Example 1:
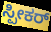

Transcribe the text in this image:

ಸ್ಪೀಕರ್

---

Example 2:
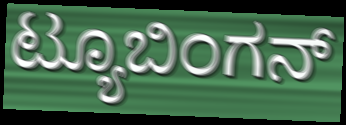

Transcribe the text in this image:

ಟ್ಯೂಬಿಂಗನ್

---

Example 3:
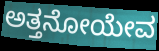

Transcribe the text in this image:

ಅತ್ತನೋಯೇವ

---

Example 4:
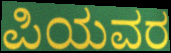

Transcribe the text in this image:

ಪಿಯವರ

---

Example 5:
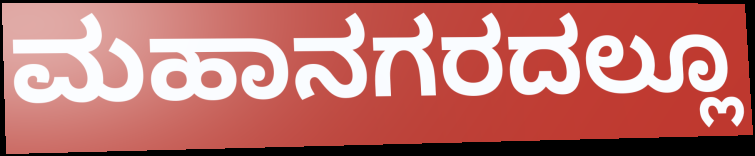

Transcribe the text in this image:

ಮಹಾನಗರದಲ್ಲೂ